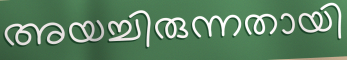
അയച്ചിരുന്നതായി